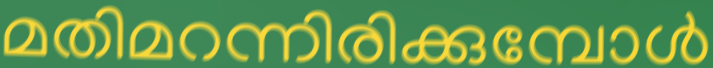
മതിമറന്നിരിക്കുമ്പോൾ